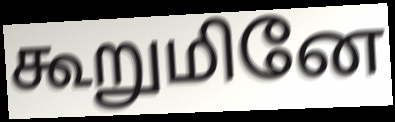
கூறுமினே